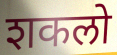
शकलो